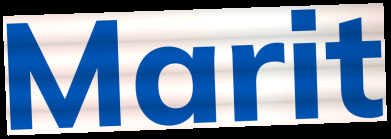
Marit